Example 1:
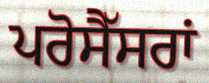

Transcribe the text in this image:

ਪਰੋਸੈੱਸਰਾਂ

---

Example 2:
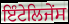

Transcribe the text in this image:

ਇੰਟੇਲਿਜੇਂਸ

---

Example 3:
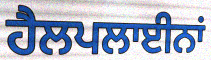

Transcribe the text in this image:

ਹੈਲਪਲਾਈਨਾਂ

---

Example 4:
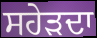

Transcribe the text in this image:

ਸਹੇੜਦਾ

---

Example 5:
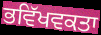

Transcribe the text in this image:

ਭਵਿੱਖਵਕਤਾ